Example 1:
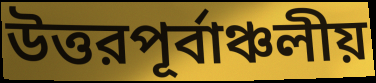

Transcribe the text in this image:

উত্তরপূর্বাঞ্চলীয়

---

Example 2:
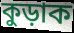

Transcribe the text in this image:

কুড়াক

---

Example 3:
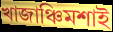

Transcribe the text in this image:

খাজাঞ্চিমশাই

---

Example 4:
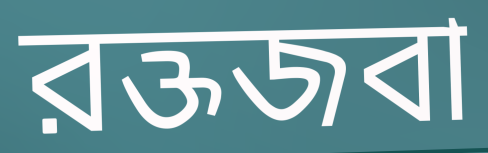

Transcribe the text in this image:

রক্তজবা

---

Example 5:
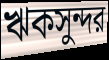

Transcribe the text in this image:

ঋকসুন্দর